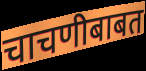
चाचणीबाबत